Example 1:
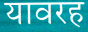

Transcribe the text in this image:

यावरह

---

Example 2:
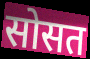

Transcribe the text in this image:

सोसत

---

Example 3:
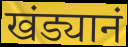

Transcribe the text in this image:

खंड्यानं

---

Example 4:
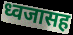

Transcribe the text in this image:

ध्वजासह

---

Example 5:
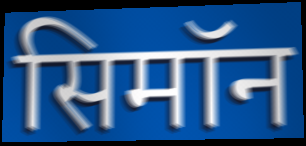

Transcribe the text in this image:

सिमॉन